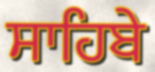
ਸਾਹਿਬੇ